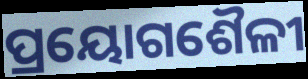
ପ୍ରୟୋଗଶୈଳୀ